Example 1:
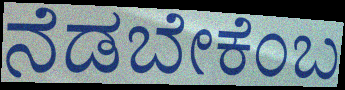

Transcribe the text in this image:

ನೆಡಬೇಕೆಂಬ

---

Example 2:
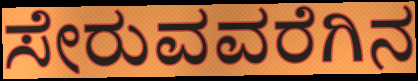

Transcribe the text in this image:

ಸೇರುವವರೆಗಿನ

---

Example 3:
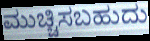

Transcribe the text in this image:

ಮುಚ್ಚಿಸಬಹುದು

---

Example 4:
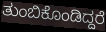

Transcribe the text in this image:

ತುಂಬಿಕೊಂಡಿದ್ದರೆ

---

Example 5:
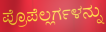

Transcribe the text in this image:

ಪ್ರೊಪೆಲ್ಲರ್ಗಳನ್ನು